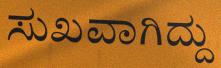
ಸುಖವಾಗಿದ್ದು